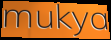
mukya